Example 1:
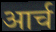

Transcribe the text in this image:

आर्च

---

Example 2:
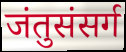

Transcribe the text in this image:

जंतुसंसर्ग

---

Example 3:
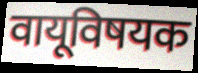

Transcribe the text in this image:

वायूविषयक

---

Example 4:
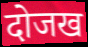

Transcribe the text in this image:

दोजख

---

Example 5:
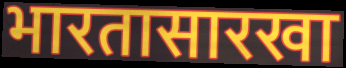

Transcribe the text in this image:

भारतासारखा